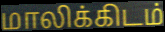
மாலிக்கிடம்